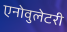
एनोवुलेटरी